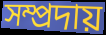
সম্প্রদায়